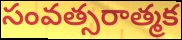
సంవత్సరాత్మక